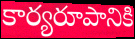
కార్యరూపానికి